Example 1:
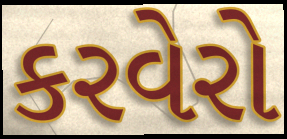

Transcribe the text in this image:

કરવેરો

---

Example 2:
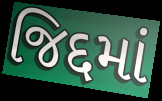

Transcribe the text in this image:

જિદ્દમાં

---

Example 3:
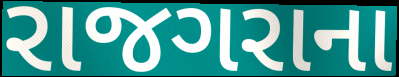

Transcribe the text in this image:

રાજગરાના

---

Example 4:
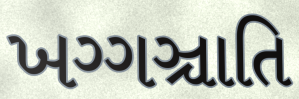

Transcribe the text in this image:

ખગ્ગઞ્ચાતિ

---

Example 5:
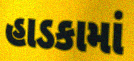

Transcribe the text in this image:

હાડકામાં